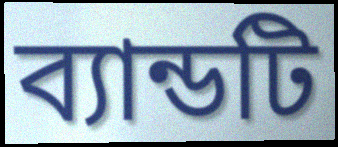
ব্যান্ডটি